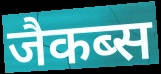
जैकब्स